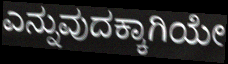
ಎನ್ನುವುದಕ್ಕಾಗಿಯೇ